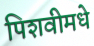
पिशवीमधे